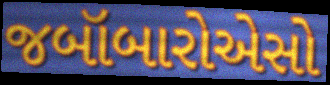
જબૉબારોએસો